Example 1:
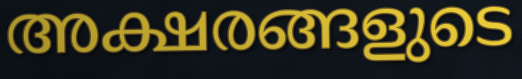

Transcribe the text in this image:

അക്ഷരങ്ങളുടെ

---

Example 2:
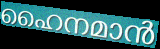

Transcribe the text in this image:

ഹൈനമാൻ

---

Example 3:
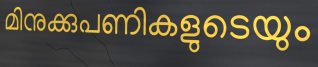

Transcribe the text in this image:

മിനുക്കുപണികളുടെയും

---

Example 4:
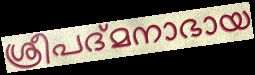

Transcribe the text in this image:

ശ്രീപദ്മനാഭായ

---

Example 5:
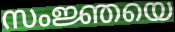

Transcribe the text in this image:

സംജ്ഞയെ